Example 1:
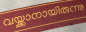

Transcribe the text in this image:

വയ്ക്കാനായിരുന്നു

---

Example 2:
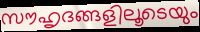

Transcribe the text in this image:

സൗഹൃദങ്ങളിലൂടെയും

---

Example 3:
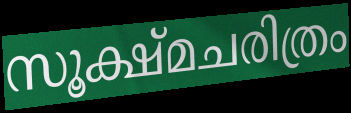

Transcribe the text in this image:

സൂക്ഷ്മചരിത്രം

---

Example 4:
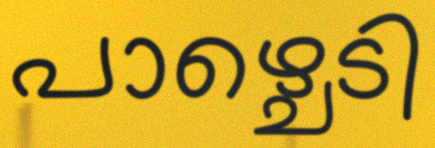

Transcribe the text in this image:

പാഴ്ചെടി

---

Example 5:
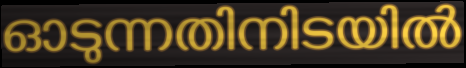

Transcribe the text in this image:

ഓടുന്നതിനിടയിൽ